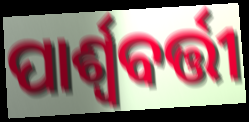
ପାର୍ଶ୍ୱବର୍ତ୍ତୀ